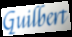
Guilbert